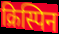
क्रिस्पिन